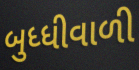
બુધ્ધીવાળી